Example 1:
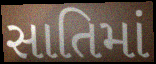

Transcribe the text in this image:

સાતિમાં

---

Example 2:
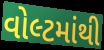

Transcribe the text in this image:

વોલ્ટમાંથી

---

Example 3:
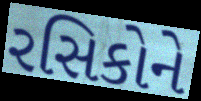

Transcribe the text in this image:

રસિકોને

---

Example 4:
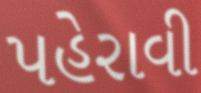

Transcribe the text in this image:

પહેરાવી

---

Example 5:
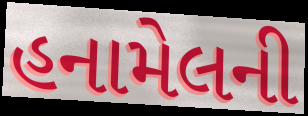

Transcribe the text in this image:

હનામેલની